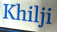
Khilji